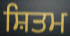
ਸ਼ਿਤਮ